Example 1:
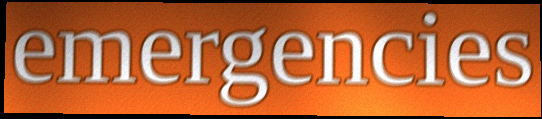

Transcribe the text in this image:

emergencies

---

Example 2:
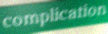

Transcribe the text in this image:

complication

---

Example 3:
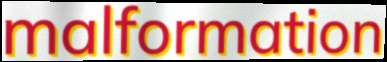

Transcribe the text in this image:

malformation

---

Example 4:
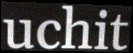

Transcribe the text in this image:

uchit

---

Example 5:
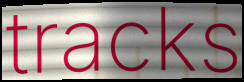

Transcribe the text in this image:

tracks